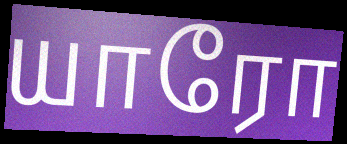
யாரோ